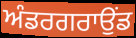
ਅੰਡਰਗਰਾਉਂਡ